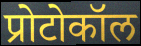
प्रोटोकॉल